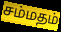
சம்மதம்